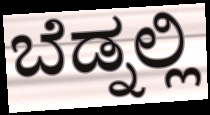
ಬೆಡ್ನಲ್ಲಿ